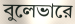
বুলেভারে